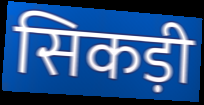
सिकड़ी